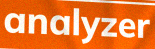
analyzer